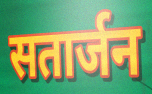
सतार्जन